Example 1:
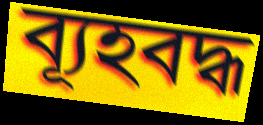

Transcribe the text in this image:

ব্যূহবদ্ধ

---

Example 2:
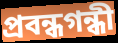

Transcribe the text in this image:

প্রবন্ধগন্ধী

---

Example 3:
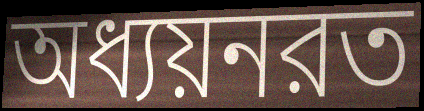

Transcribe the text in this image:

অধ্যয়নরত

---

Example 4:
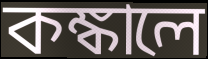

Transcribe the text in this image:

কঙ্কালে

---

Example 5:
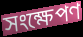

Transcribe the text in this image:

সংক্ষেপণ